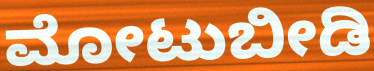
ಮೋಟುಬೀಡಿ